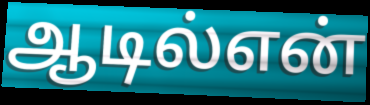
ஆடில்என்